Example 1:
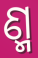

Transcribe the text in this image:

ଣ୍ମ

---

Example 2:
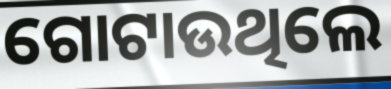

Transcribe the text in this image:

ଗୋଟାଉଥିଲେ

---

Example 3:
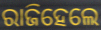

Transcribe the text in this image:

ରାଜିହେଲେ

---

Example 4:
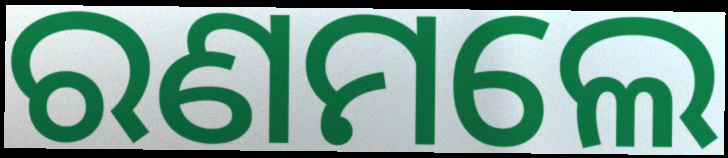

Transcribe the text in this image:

ରଣମଲେ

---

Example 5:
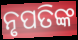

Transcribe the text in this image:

ନୃପତିଙ୍କ